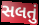
સલતું